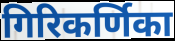
गिरिकर्णिका